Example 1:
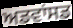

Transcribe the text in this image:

ਅਡਵਾਂਸਡ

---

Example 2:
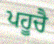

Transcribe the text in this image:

ਪਹੂਚੈ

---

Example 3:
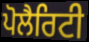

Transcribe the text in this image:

ਪੋਲੈਰਿਟੀ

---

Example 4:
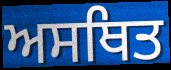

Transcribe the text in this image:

ਅਸਥਿਤ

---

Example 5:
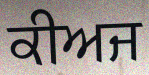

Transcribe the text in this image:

ਕੀਅਜ